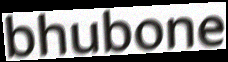
bhubone